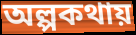
অল্পকথায়